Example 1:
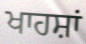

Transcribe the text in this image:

ਖਾਹਸ਼ਾਂ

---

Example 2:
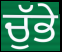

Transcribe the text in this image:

ਚੁੱਭੇ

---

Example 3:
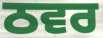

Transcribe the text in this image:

ਠਵਰ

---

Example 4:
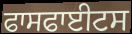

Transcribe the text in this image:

ਫਾਸਫਾਈਟਸ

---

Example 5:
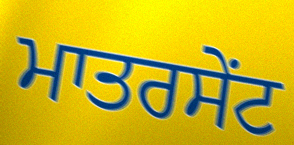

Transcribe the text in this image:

ਮਾਤਰਸੇਂਟ